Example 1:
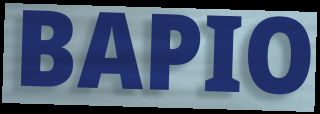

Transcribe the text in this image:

BAPIO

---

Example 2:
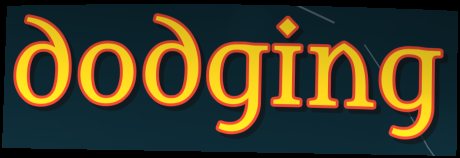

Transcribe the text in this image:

dodging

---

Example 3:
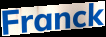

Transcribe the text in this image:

Franck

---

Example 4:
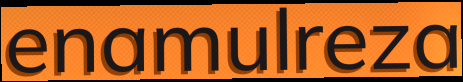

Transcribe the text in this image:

enamulreza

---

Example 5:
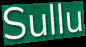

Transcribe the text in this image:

Sullu